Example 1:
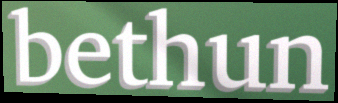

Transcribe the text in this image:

bethun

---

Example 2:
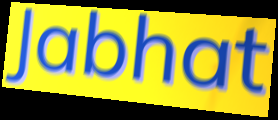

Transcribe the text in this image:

Jabhat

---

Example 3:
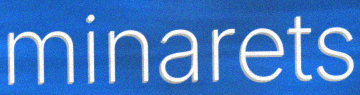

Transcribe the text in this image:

minarets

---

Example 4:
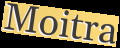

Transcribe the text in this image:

Moitra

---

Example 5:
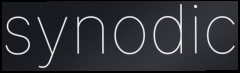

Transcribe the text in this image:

synodic